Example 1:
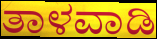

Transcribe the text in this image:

ತಾಳವಾಡಿ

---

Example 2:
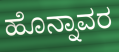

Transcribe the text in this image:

ಹೊನ್ನಾವರ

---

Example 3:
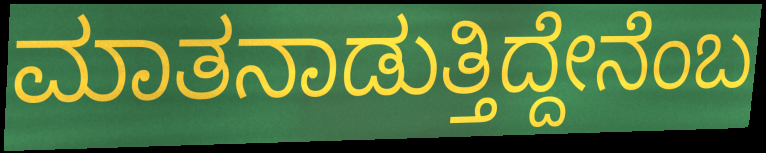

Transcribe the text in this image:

ಮಾತನಾಡುತ್ತಿದ್ದೇನೆಂಬ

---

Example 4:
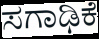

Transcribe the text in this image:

ಸಗಾಢಿಕೆ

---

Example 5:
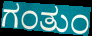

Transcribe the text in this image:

ಗಂತುಂ